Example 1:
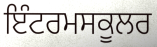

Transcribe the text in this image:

ਇੰਟਰਮਸਕੂਲਰ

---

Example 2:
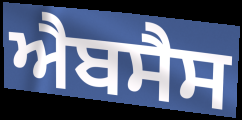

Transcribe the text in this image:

ਐਬਸੈਸ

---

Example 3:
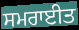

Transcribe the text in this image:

ਸਮਰਾਈਤ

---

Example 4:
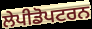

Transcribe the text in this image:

ਲੇਪੀਡੋਪਟਰਨ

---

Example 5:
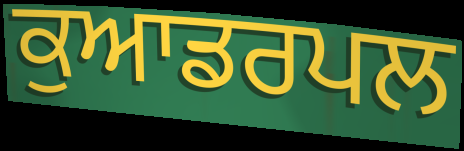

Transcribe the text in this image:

ਕੁਆਡਰਪਲ